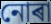
নোৰা